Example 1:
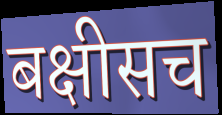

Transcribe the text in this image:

बक्षीसच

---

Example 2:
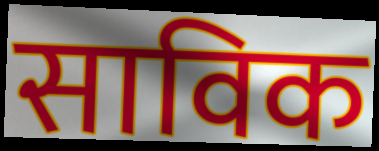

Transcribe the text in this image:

साविक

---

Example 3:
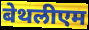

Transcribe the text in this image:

बेथलीएम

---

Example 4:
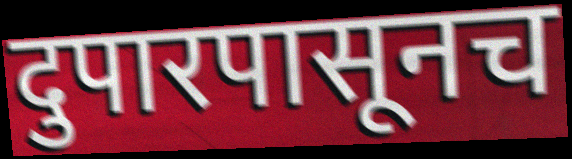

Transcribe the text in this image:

दुपारपासूनच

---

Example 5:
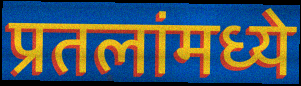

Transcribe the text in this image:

प्रतलांमध्ये